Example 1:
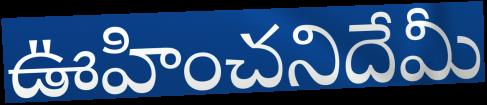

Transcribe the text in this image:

ఊహించనిదేమీ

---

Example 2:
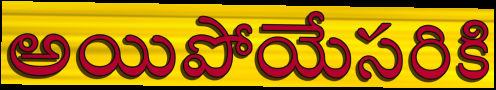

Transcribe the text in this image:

అయిపోయేసరికి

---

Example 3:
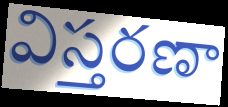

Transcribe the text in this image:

విస్తరణా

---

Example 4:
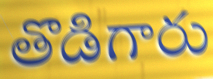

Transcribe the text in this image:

తొడిగారు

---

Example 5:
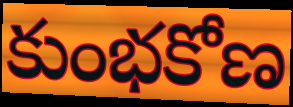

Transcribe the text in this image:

కుంభకోణ